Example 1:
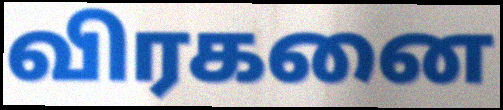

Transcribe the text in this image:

விரகனை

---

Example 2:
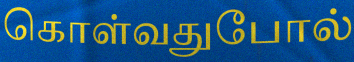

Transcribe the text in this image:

கொள்வதுபோல்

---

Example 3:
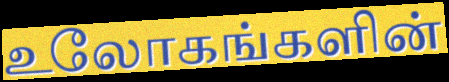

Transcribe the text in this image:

உலோகங்களின்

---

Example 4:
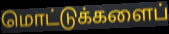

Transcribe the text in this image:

மொட்டுக்களைப்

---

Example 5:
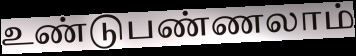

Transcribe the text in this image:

உண்டுபண்ணலாம்